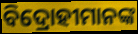
ବିଦ୍ରୋହୀମାନଙ୍କ